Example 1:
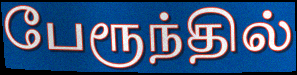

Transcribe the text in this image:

பேரூந்தில்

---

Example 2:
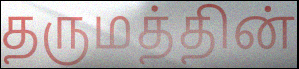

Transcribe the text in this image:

தருமத்தின்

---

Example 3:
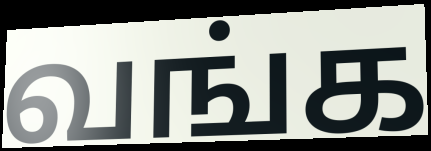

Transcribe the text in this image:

வங்க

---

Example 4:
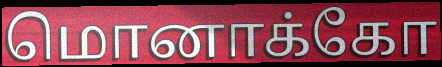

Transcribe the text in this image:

மொனாக்கோ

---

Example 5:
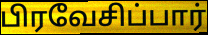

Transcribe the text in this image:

பிரவேசிப்பார்